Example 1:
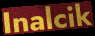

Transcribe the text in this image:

Inalcik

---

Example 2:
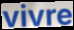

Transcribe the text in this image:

vivre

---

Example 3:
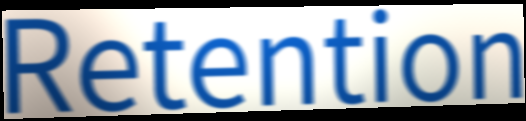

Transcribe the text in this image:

Retention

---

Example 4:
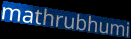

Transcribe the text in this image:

mathrubhumi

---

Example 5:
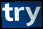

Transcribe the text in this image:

try